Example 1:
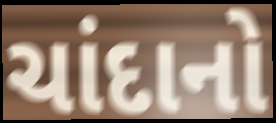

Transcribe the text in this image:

ચાંદાનો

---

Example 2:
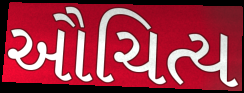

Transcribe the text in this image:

ઔચિત્ય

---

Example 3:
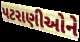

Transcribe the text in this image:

પટરાણીઓને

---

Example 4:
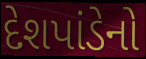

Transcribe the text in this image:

દેશપાંડેનો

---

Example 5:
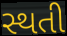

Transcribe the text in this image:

સ્થતી